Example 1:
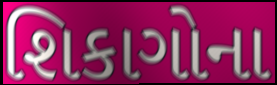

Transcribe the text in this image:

શિકાગોના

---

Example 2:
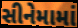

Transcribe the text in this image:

સીનેમામાં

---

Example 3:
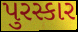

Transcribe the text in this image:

પુરસ્કાર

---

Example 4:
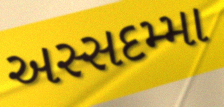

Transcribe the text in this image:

અસ્સદમ્મા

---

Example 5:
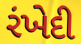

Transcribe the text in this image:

રંખેદી